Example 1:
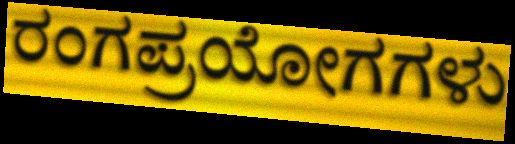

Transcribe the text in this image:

ರಂಗಪ್ರಯೋಗಗಳು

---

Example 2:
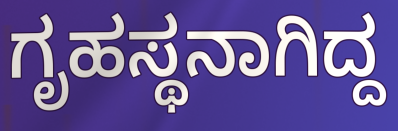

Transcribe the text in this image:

ಗೃಹಸ್ಥನಾಗಿದ್ದ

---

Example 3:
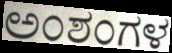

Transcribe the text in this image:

ಅಂಶಂಗಳ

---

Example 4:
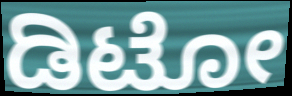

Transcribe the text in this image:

ಡಿಟೋ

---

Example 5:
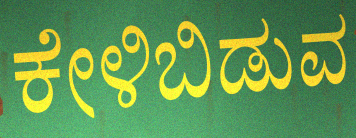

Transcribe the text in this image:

ಕೇಳಿಬಿಡುವ